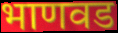
भाणवड